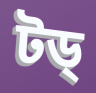
টড্